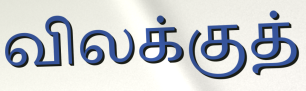
விலக்குத்